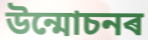
উন্মোচনৰ